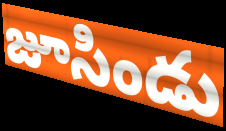
జూసిండు